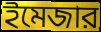
ইমেজার